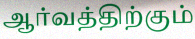
ஆர்வத்திற்கும்